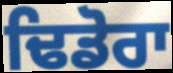
ਢਿਡੋਰਾ